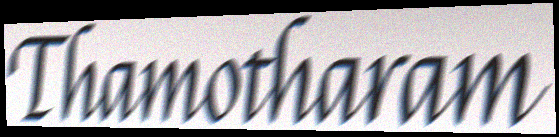
Thamotharam